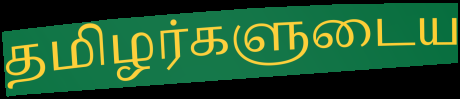
தமிழர்களுடைய